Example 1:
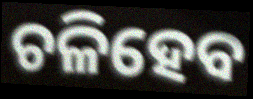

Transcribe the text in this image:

ଚଳିହେବ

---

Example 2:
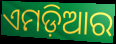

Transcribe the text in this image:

ଏମଡ଼ିଆର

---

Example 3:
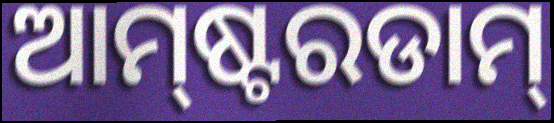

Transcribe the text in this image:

ଆମ୍‍ଷ୍ଟରଡାମ୍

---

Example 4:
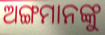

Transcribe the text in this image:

ଅଙ୍ଗମାନଙ୍କୁ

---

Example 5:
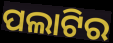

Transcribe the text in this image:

ପଲାଟିର